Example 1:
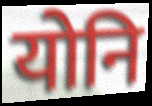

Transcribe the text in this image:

योनि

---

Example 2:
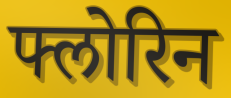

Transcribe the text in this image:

फ्लोरिन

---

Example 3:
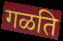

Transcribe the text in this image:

गळति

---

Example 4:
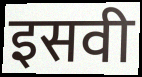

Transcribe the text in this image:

इसवी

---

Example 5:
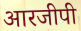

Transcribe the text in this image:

आरजीपी